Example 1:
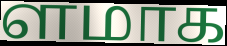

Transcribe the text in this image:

ளமாக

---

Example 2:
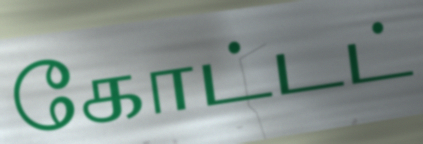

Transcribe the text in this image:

கோட்டட்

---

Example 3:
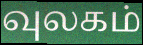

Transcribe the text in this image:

வுலகம்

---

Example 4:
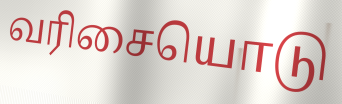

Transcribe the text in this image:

வரிசையொடு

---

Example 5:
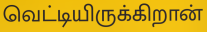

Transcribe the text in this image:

வெட்டியிருக்கிறான்